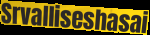
Srvalliseshasai